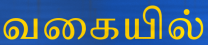
வகையில்